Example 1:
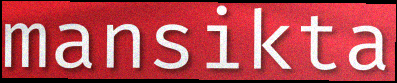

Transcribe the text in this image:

mansikta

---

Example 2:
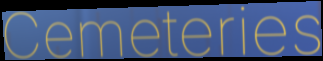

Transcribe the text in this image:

Cemeteries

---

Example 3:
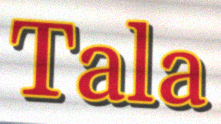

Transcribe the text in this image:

Tala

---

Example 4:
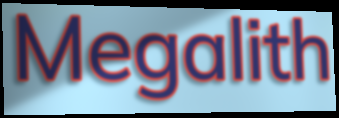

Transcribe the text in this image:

Megalith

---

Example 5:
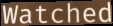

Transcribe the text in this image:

Watched